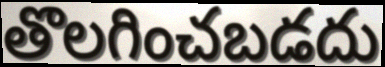
తొలగించబడదు